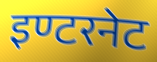
इण्टरनेट